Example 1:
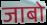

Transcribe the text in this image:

जाबो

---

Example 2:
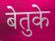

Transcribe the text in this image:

बेतुके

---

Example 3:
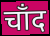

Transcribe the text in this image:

चाँद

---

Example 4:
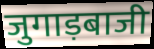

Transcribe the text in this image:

जुगाड़बाजी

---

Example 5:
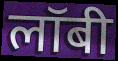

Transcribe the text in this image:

लॉबी